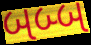
બબ્બ